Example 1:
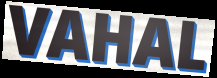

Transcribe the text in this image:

VAHAL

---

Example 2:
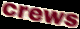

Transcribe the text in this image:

crews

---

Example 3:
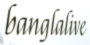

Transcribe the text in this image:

banglalive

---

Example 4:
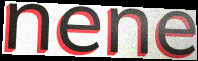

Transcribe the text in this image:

nene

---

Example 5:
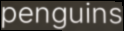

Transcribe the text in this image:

penguins